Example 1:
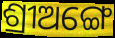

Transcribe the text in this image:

ଶ୍ରୀଅଙ୍ଗେ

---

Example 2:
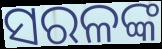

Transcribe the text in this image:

ସରଳଙ୍କ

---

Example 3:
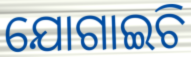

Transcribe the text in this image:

ଯୋଗାଇଚି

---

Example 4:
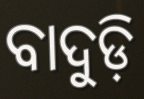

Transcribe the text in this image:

ବାଦୁଡ଼ି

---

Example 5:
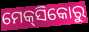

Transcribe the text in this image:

ମେକ୍‌ସିକୋରୁ